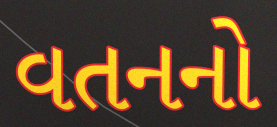
વતનનો